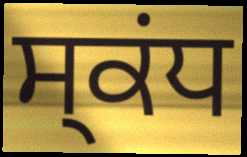
ਸ੍ਕਂਧ